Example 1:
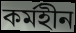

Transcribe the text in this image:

কৰ্মহীন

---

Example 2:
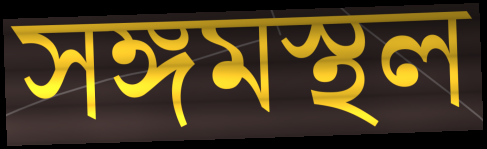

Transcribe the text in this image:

সঙ্গমস্থল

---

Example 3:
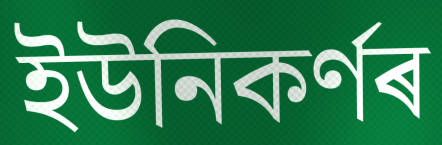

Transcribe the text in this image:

ইউনিকৰ্ণৰ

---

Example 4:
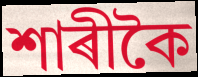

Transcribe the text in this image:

শাৰীকৈ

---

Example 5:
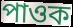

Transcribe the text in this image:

পাওক